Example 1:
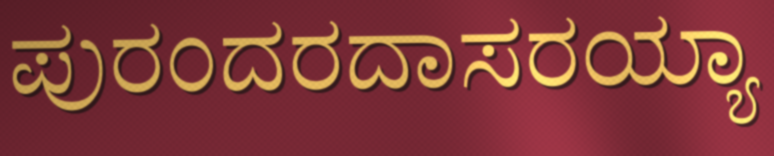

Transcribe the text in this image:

ಪುರಂದರದಾಸರಯ್ಯಾ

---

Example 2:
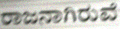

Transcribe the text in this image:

ರಾಜನಾಗಿರುವೆ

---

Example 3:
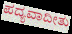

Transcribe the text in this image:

ಪದ್ಯವಾದೀತು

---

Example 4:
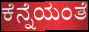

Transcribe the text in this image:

ಕೆನ್ನೆಯಂತೆ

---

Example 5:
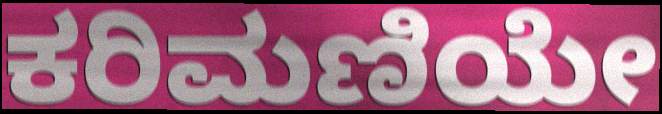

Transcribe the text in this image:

ಕರಿಮಣಿಯೇ